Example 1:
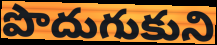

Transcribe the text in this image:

పొదుగుకుని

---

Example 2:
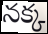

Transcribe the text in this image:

నక్క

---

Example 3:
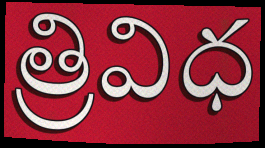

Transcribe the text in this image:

త్రివిధ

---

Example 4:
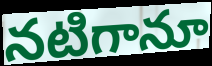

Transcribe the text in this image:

నటిగానూ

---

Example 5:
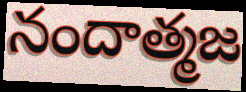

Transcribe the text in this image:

నందాత్మజ